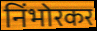
निंभोरकर